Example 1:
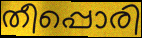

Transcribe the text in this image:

തീപ്പൊരി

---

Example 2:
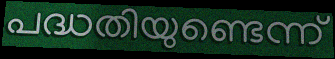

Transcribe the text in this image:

പദ്ധതിയുണ്ടെന്ന്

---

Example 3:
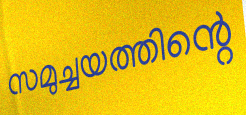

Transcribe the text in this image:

സമുച്ചയത്തിന്റെ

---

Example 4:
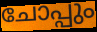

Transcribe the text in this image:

ചോപ്പും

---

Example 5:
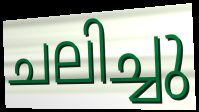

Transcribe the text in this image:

ചലിച്ചു